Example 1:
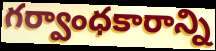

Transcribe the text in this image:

గర్వాంధకారాన్ని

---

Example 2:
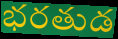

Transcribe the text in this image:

భరతుడ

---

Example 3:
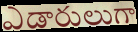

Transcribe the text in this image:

ఎడారులుగా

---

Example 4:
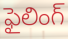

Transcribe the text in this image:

ఫైలింగ్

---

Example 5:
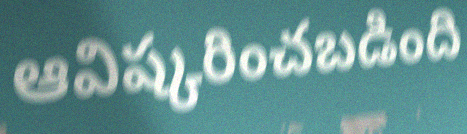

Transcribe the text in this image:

ఆవిష్కరించబడింది